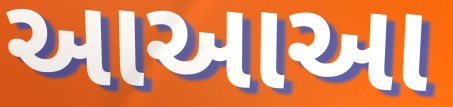
આઆઆ